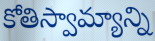
కోతిస్వామ్యాన్ని